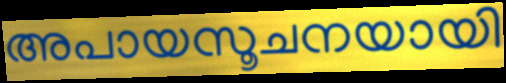
അപായസൂചനയായി